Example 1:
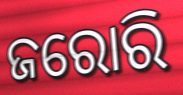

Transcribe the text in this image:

ଜରୋରି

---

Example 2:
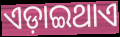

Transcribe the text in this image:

ଏଡ଼ାଇଥାଏ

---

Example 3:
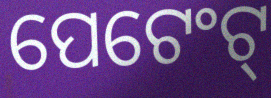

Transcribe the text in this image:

ପେଟେଂଟ୍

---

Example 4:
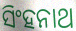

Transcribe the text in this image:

ସିଂହନାଥ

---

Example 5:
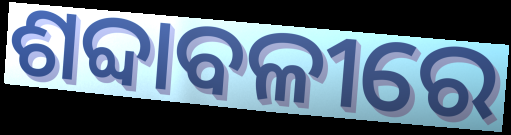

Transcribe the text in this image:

ଶବ୍ଦାବଳୀରେ